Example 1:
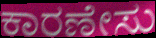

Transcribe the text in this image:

ಕಾರಣೇಸು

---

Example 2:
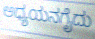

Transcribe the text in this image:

ಅಧ್ಯಯನಗೈದು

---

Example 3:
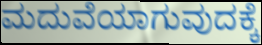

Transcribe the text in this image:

ಮದುವೆಯಾಗುವುದಕ್ಕೆ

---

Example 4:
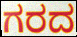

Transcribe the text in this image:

ಗರದ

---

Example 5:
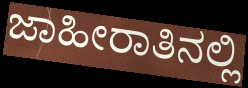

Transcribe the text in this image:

ಜಾಹೀರಾತಿನಲ್ಲಿ